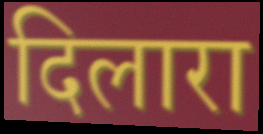
दिलारा